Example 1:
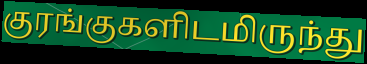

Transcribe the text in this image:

குரங்குகளிடமிருந்து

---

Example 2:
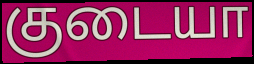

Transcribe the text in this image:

குடையா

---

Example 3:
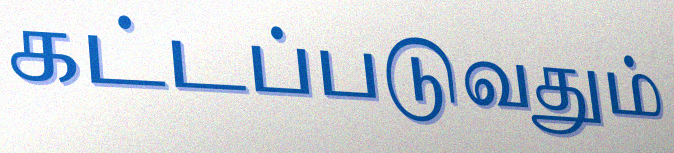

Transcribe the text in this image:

கட்டப்படுவதும்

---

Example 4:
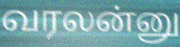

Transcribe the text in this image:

வரலன்னு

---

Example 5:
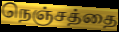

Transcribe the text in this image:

நெஞ்சத்தை